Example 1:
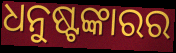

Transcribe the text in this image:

ଧନୁଷ୍ଟଙ୍କାରର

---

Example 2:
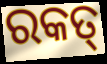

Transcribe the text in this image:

ରକତ୍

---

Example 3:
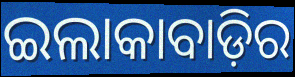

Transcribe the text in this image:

ଇଲାକାବାଡ଼ିର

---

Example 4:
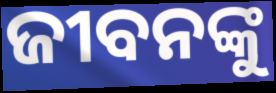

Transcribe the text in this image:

ଜୀବନଙ୍କୁ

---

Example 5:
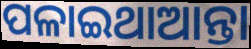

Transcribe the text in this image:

ପଳାଇଥାଆନ୍ତା